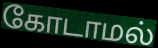
கோடாமல்